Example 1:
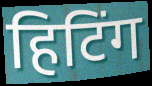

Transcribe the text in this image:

हिटिंग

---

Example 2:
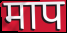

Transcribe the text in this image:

माप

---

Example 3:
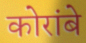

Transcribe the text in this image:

कोरांबे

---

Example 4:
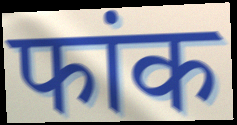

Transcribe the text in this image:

फांक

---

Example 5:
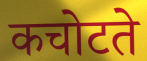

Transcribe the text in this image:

कचोटते